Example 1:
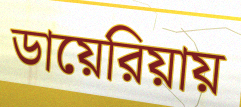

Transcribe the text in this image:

ডায়েরিয়ায়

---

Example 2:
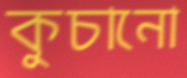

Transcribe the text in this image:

কুচানো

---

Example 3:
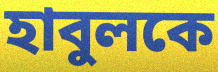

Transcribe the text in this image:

হাবুলকে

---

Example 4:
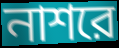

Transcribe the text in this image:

নাশরে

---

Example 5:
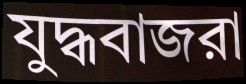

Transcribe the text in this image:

যুদ্ধবাজরা